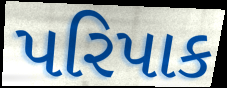
પરિપાક